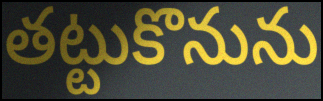
తట్టుకొనును